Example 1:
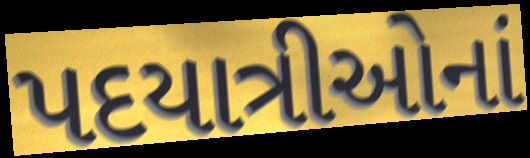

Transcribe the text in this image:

પદયાત્રીઓનાં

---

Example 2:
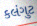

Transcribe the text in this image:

કલંગુટ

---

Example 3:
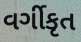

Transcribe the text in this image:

વર્ગીકૃત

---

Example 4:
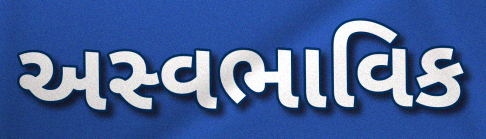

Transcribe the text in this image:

અસ્વભાવિક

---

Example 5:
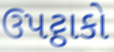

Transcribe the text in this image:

ઉપટ્ઠાકો